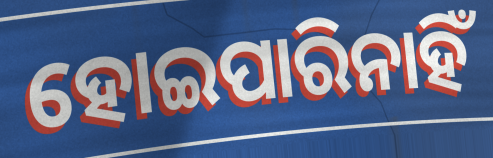
ହୋଇପାରିନାହିଁ